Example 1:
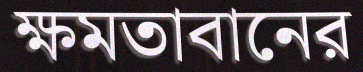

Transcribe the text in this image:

ক্ষমতাবানের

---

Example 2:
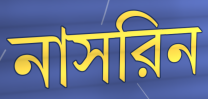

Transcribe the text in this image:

নাসরিন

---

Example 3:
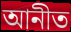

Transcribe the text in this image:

আনীত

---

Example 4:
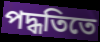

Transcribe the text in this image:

পদ্ধতিতে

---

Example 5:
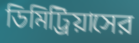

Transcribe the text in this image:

ডিমিট্রিয়াসের